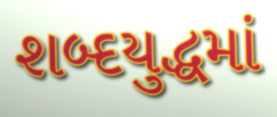
શબ્દયુદ્ધમાં